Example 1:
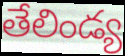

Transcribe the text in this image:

తేలిండ్య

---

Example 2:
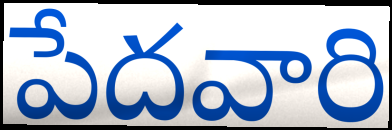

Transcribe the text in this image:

పేదవారి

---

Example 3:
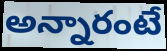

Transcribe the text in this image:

అన్నారంటే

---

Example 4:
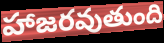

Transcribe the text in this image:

హాజరవుతుంది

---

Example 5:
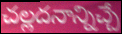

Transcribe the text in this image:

చల్లదనాన్నిచ్చే